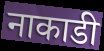
नाकाडी